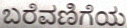
ಬರೆವಣಿಗೆಯ